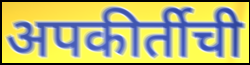
अपकीर्तीची